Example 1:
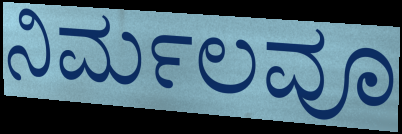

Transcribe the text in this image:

ನಿರ್ಮಲವೂ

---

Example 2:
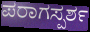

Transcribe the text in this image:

ಪರಾಗಸ್ಪರ್ಶ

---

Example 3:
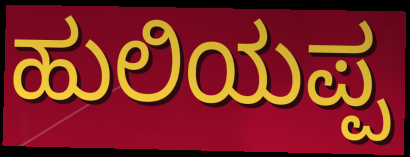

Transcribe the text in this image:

ಹುಲಿಯಪ್ಪ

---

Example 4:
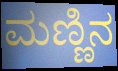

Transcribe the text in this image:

ಮಣ್ಣಿನ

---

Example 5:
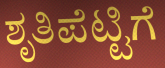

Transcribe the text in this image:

ಶೃತಿಪೆಟ್ಟಿಗೆ